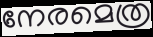
നേരമെത്ര